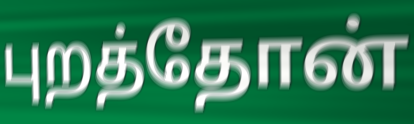
புறத்தோன்